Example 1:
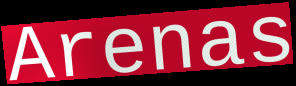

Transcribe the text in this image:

Arenas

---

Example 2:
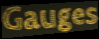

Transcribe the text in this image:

Gauges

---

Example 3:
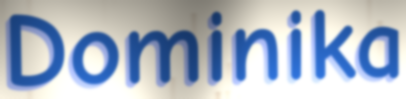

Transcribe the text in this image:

Dominika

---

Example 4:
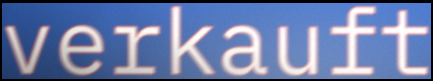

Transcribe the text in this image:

verkauft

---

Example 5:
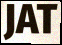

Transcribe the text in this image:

JAT